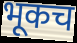
भूकच